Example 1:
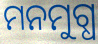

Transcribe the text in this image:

ମନମୁଗ୍ଧ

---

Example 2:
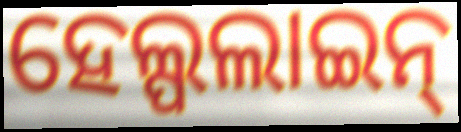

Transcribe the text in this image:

ହେଲ୍ପଲାଇନ୍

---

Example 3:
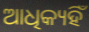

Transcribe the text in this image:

ଆଧିକ୍ୟହିଁ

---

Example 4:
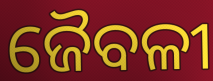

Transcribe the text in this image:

ଜୈବଳୀ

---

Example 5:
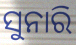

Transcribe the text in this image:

ସୁନାରି